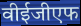
वीईजीएफ